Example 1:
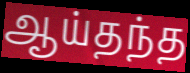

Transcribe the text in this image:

ஆய்தந்த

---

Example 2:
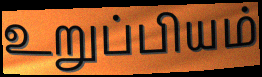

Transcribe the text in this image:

உறுப்பியம்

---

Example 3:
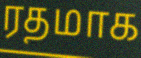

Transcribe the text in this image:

ரதமாக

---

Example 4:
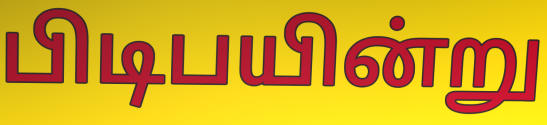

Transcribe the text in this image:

பிடிபயின்று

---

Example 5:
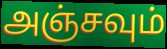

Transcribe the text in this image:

அஞ்சவும்